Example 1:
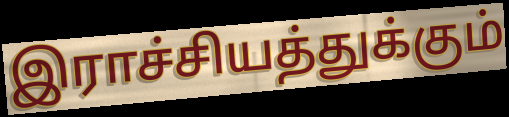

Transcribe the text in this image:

இராச்சியத்துக்கும்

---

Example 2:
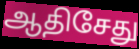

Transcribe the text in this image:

ஆதிசேது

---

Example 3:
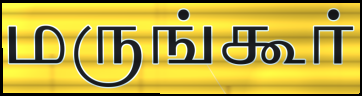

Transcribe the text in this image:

மருங்கூர்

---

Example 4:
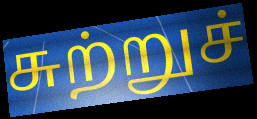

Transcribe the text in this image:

சுற்றுச்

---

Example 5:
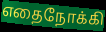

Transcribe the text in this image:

எதைநோக்கி